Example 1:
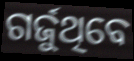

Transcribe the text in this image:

ଗର୍ଜୁଥିବେ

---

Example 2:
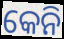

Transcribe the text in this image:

କେନି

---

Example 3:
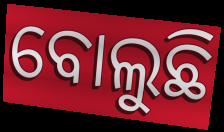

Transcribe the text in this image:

ବୋଲୁଛି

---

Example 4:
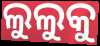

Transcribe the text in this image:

ଲୁଲୁକୁ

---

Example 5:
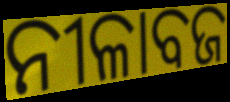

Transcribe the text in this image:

ନୀଳାବଜ